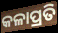
କଳାପ୍ରତି